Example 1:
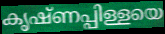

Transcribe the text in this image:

കൃഷ്ണപ്പിള്ളയെ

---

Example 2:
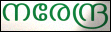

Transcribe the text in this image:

നരേന്ദ്ര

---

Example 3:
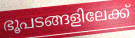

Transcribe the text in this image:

ഭൂപടങ്ങളിലേക്ക്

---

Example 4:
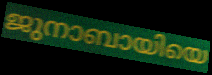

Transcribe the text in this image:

ജുനാബായിയെ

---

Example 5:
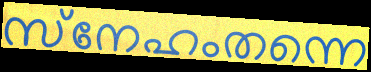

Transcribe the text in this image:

സ്‌നേഹംതന്നെ